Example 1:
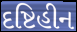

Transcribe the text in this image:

દષ્ટિહીન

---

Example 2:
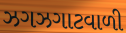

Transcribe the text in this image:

ઝગઝગાટવાળી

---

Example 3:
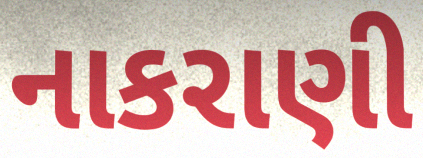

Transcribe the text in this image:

નાકરાણી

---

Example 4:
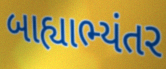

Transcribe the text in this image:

બાહ્યાભ્યંતર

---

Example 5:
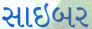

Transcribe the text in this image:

સાઇબર